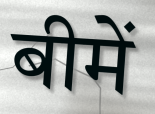
बीमें